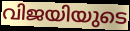
വിജയിയുടെ